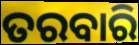
ତରବାରି